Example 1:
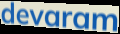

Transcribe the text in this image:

devaram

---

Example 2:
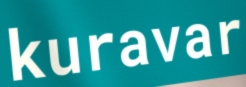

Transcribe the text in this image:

kuravar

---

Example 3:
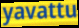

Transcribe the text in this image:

yavattu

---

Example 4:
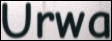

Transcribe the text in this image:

Urwa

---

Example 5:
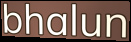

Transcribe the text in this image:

bhalun